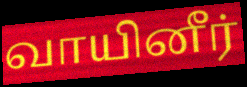
வாயினீர்